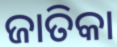
ଜାତିକା